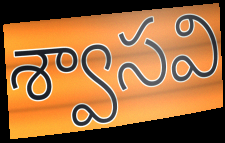
శ్వాసవి